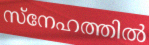
സ്നേഹത്തിൽ